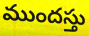
ముందస్తు